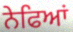
ਨੇਫਿਆਂ